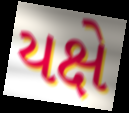
યક્ષે